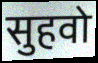
सुहवो